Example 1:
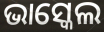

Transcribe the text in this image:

ଭାସ୍କେଲ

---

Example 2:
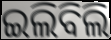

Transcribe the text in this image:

ଇଲିବିଲି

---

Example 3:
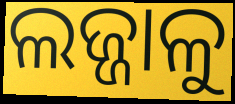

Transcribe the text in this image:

ଲଜ୍ଜାଳୁ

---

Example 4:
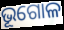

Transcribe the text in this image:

ଭୂଗୋଳ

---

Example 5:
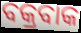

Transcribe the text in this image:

ବକ୍ରବାକ